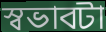
স্বভাবটা